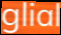
glial